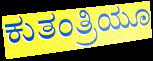
ಕುತಂತ್ರಿಯೂ